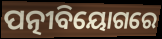
ପତ୍ନୀବିୟୋଗରେ